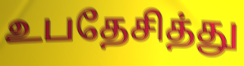
உபதேசித்து